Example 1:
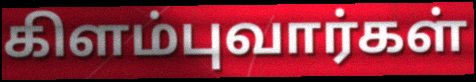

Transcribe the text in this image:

கிளம்புவார்கள்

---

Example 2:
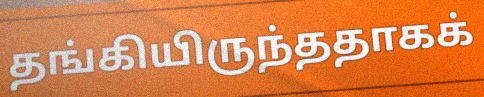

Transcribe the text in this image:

தங்கியிருந்ததாகக்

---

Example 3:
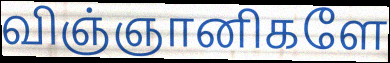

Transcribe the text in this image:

விஞ்ஞானிகளே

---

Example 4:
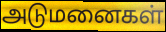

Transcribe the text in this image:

அடுமனைகள்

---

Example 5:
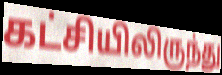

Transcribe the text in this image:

கட்சியிலிருந்து